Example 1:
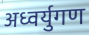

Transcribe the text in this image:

अध्वर्युगण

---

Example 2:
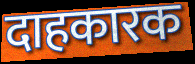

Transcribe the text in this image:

दाहकारक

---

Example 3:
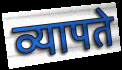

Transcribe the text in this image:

व्यापते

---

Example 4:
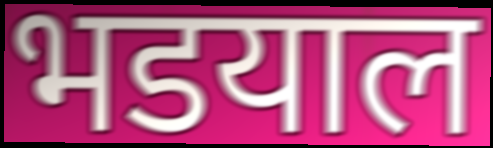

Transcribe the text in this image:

भडयाल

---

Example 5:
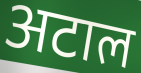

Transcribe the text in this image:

अटाल